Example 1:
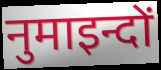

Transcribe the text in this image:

नुमाइन्दों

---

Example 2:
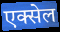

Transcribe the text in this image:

एक्सेल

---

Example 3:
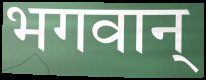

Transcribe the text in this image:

भगवान्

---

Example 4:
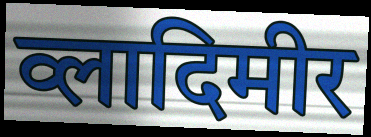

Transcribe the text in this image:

व्लादिमीर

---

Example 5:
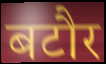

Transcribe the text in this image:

बटौर